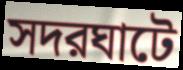
সদরঘাটে